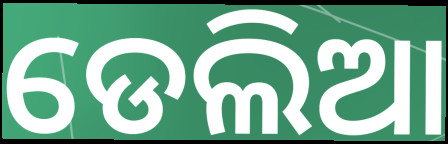
ଡେଲିଆ